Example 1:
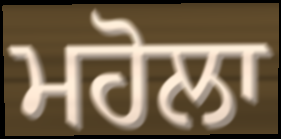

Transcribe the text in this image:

ਮਹੋਲਾ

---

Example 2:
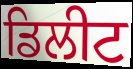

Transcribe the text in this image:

ਡਿਲੀਟ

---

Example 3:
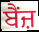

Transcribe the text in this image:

ਬੈਂਜ਼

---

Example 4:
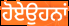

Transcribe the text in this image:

ਹੋਏਉਹਨਾਂ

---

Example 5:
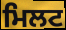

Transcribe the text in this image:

ਮਿਲਟ